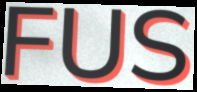
FUS